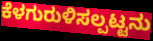
ಕೆಳಗುರುಳಿಸಲ್ಪಟ್ಟನು